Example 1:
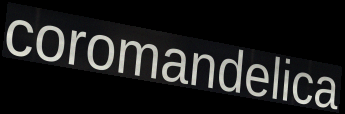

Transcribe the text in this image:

coromandelica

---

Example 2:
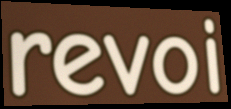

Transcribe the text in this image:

revoi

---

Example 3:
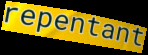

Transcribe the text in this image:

repentant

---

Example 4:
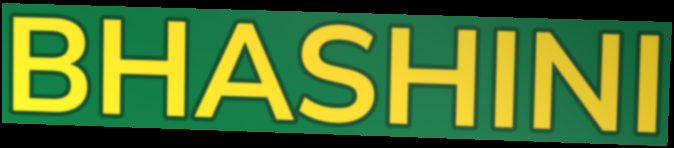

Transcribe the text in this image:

BHASHINI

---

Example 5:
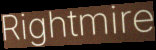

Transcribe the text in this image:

Rightmire